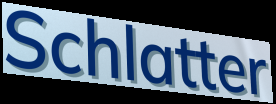
Schlatter